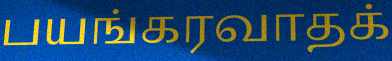
பயங்கரவாதக்